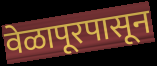
वेळापूरपासून